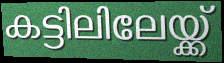
കട്ടിലിലേയ്ക്ക്